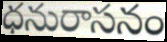
ధనురాసనం